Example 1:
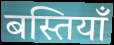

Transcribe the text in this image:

बस्तियाँ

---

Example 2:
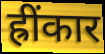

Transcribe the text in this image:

ह्रींकार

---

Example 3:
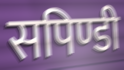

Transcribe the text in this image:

सपिण्डी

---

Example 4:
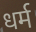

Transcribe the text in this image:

धर्म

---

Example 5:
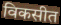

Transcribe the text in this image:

विकसीत